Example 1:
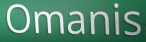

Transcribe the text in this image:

Omanis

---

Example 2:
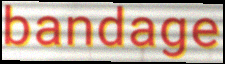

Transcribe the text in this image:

bandage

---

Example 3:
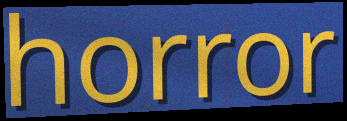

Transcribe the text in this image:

horror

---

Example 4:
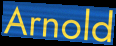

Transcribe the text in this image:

Arnold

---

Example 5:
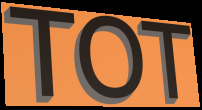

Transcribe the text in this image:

TOT